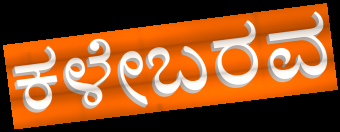
ಕಳೇಬರವ